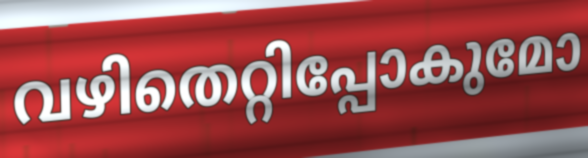
വഴിതെറ്റിപ്പോകുമോ